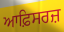
ਆਫ਼ਿਸਰਜ਼